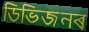
ডিভিজনৰ